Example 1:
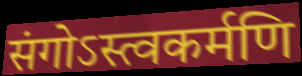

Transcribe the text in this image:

संगोऽस्त्वकर्मणि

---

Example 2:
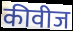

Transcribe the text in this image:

कीवीज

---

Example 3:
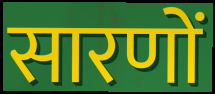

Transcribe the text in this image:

सारणों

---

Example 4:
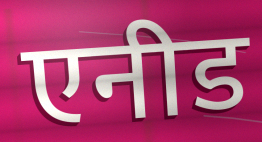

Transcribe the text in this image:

एनीड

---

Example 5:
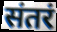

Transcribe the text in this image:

संतरं